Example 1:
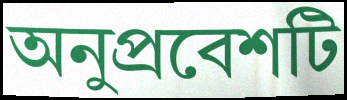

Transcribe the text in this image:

অনুপ্রবেশটি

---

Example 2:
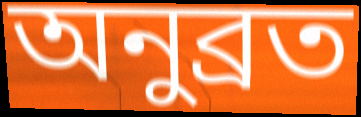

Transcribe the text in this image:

অনুব্রত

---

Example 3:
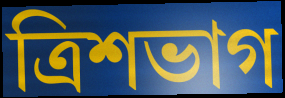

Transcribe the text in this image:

ত্রিশভাগ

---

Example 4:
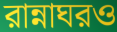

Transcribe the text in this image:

রান্নাঘরও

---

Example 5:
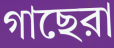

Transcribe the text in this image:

গাছেরা